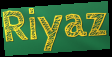
Riyaz